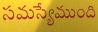
సమస్యేముంది